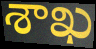
శాఖ